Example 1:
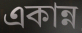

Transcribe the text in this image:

একান্ন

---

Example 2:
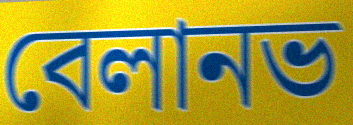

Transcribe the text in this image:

বেলানভ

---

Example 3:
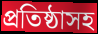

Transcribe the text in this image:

প্রতিষ্ঠাসহ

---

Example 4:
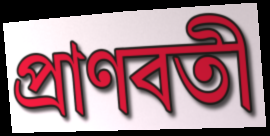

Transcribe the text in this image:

প্রাণবতী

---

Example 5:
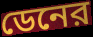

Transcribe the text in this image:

ডেনের